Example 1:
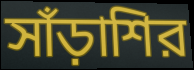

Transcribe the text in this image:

সাঁড়াশির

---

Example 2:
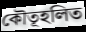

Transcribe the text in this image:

কৌতূহলিত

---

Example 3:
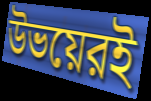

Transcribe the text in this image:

উভয়েরই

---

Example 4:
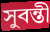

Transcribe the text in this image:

সুবন্তী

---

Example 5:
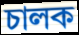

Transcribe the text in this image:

চালক